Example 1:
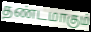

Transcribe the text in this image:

தண்டமாகும்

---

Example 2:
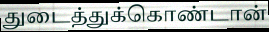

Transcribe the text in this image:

துடைத்துக்கொண்டான்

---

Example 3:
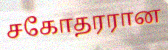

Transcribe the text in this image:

சகோதரரான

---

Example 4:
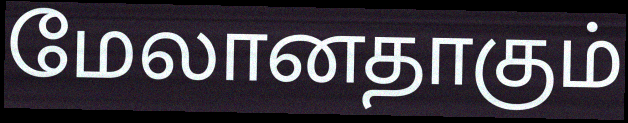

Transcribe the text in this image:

மேலானதாகும்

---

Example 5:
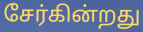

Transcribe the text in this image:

சேர்கின்றது